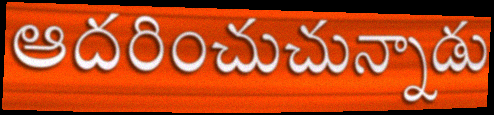
ఆదరించుచున్నాడు